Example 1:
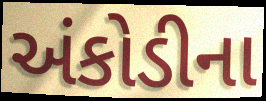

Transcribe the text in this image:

અંકોડીના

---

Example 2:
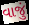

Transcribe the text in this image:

વાજું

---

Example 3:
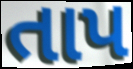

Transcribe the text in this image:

તાપ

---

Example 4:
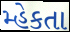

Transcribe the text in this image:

મ્હેકતા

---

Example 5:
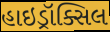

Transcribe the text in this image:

હાઇડ્રૉક્સિલ